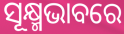
ସୂକ୍ଷ୍ମଭାବରେ